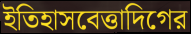
ইতিহাসবেত্তাদিগের